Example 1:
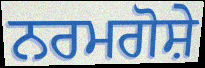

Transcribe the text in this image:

ਨਰਮਗੋਸ਼ੇ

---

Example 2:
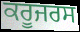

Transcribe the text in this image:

ਕਰੂਜਰਸ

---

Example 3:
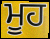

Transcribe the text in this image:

ਮੂਹ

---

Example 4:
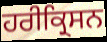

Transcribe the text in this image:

ਹਰੀਕ੍ਰਿਸਨ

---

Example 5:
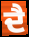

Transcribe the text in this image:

ਦੈ